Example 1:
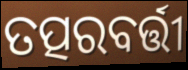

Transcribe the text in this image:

ତତ୍ପରବର୍ତ୍ତୀ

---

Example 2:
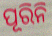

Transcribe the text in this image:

ପୂରିନି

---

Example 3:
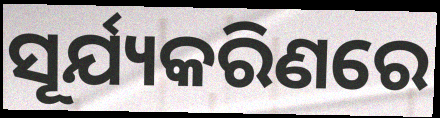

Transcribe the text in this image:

ସୂର୍ଯ୍ୟକରିଣରେ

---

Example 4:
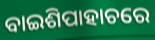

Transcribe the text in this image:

ବାଇଶିପାହାଚରେ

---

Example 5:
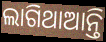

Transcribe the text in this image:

ଲାଗିଥାଆନ୍ତି